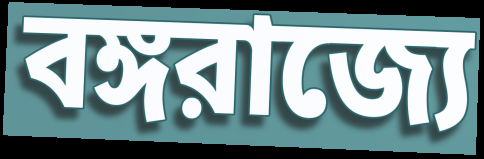
বঙ্গরাজ্যে